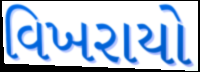
વિખરાયો